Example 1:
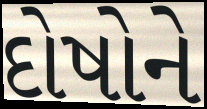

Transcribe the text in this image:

દોષોને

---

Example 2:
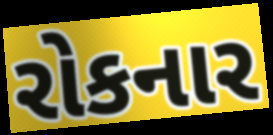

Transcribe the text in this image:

રોકનાર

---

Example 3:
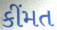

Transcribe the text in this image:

કીંમત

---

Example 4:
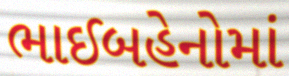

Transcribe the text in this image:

ભાઈબહેનોમાં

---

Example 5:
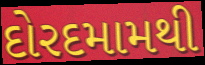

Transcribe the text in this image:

દોરદમામથી